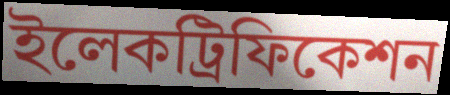
ইলেকট্রিফিকেশন